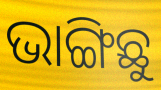
ଭାଙ୍ଗିଛୁ